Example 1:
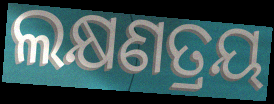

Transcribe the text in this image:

ଲକ୍ଷଣତ୍ରୟ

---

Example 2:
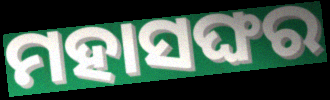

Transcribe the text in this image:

ମହାସଙ୍ଘର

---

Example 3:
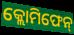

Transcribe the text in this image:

କ୍ଲୋମିଫେନ୍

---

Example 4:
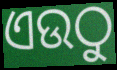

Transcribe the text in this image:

ଏଉଠୁ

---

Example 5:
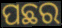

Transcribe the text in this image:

ପଛର